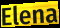
Elena